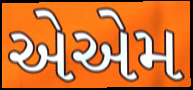
એએમ